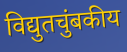
विद्युतचुंबकीय